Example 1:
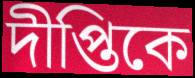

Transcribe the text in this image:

দীপ্তিকে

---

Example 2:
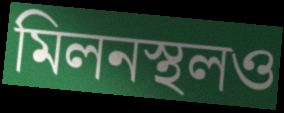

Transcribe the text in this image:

মিলনস্থলও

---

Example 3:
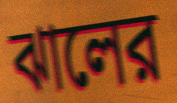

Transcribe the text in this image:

ঝালের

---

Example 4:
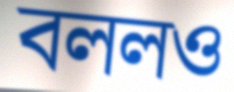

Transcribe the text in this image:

বললও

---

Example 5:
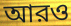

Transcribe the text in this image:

আরও